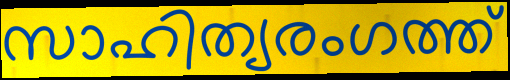
സാഹിത്യരംഗത്ത്